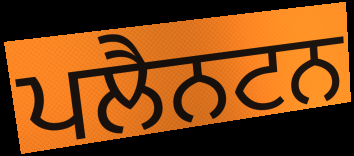
ਪਲੈਨਟਨ